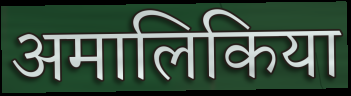
अमालिकिया